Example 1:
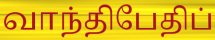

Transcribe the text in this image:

வாந்திபேதிப்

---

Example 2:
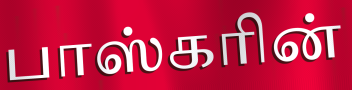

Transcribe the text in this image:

பாஸ்கரின்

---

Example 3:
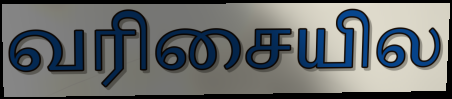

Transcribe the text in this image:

வரிசையில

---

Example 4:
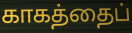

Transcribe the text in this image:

காகத்தைப்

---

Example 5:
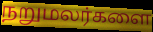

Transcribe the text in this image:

நறுமலர்களை